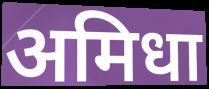
अमिधा